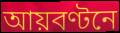
আয়বণ্টনে